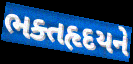
ભક્તહૃદયને